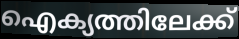
ഐക്യത്തിലേക്ക്